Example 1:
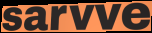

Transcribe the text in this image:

sarvve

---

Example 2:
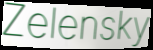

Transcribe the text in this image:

Zelensky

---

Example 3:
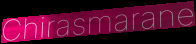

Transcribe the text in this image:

Chirasmarane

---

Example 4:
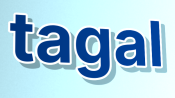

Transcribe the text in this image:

tagal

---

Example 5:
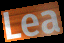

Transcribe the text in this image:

Lea